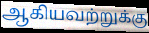
ஆகியவற்றுக்கு